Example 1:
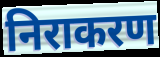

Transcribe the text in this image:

निराकरण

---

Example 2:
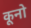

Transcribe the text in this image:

कूनो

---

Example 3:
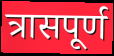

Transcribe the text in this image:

त्रासपूर्ण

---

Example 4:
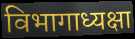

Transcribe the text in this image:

विभागाध्यक्षा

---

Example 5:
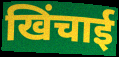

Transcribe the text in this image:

खिंचाई